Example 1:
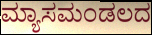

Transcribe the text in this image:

ಮ್ಯಾಸಮಂಡಲದ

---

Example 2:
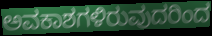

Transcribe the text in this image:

ಅವಕಾಶಗಳಿರುವುದರಿಂದ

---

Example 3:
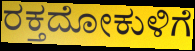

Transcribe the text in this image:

ರಕ್ತದೋಕುಳಿಗೆ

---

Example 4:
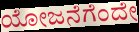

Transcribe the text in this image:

ಯೋಜನೆಗೆಂದೇ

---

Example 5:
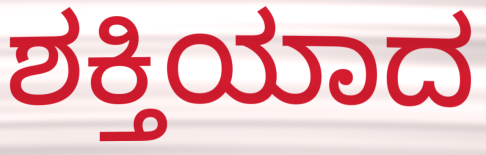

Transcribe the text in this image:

ಶಕ್ತಿಯಾದ